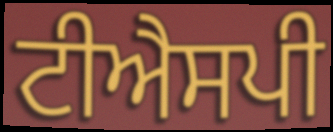
ਟੀਐਸਪੀ